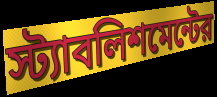
স্ট্যাবলিশমেন্টের